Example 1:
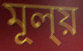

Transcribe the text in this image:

মূল্য়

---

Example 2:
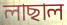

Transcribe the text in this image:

লাছাল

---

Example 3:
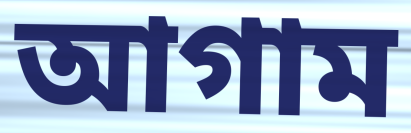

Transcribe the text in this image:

আগাম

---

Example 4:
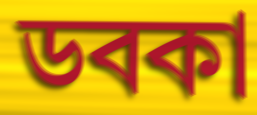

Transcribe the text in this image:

ডবকা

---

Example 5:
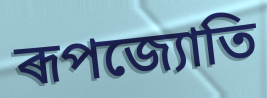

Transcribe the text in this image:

ৰূপজ্যোতি